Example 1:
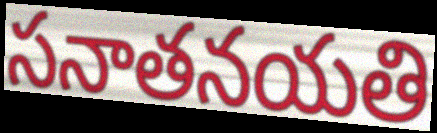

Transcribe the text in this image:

సనాతనయతి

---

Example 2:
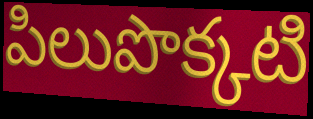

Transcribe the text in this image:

పిలుపొక్కటి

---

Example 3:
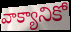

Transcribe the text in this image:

వాక్యానికో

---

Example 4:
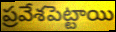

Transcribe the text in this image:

ప్రవేశపెట్టాయి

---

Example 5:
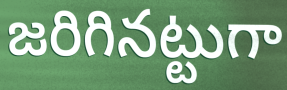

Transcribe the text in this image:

జరిగినట్టుగా